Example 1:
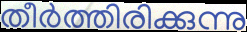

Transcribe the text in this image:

തീർത്തിരിക്കുന്നു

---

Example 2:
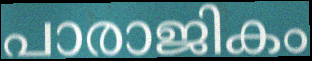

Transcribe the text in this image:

പാരാജികം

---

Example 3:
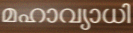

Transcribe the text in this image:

മഹാവ്യാധി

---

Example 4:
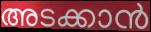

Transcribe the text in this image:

അടക്കാൻ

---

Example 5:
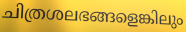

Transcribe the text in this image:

ചിത്രശലഭങ്ങളെങ്കിലും